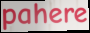
pahere